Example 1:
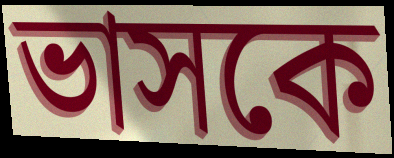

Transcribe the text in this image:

ভাসকে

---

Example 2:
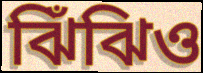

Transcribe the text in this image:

ঝিঁঝিও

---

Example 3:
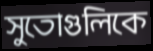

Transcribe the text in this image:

সুতোগুলিকে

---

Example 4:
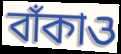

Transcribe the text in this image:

বাঁকাও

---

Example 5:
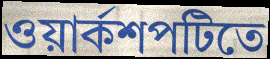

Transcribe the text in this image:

ওয়ার্কশপটিতে